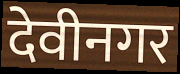
देवीनगर